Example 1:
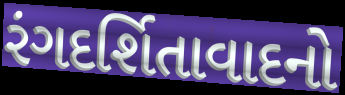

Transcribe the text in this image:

રંગદર્શિતાવાદનો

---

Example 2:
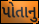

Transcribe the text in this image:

પોતાનુ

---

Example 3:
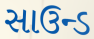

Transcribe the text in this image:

સાઉન્ડ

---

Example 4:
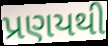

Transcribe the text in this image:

પ્રણયથી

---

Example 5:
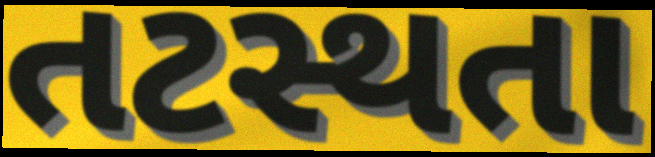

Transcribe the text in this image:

તટસ્થતા